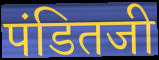
पंडितजी